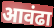
आवंढा